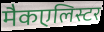
मैकएलिस्टर